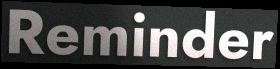
Reminder